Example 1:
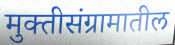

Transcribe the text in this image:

मुक्तीसंग्रामातील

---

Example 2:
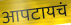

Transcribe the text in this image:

आपटायचं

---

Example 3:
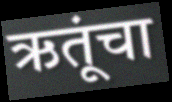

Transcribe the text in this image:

ऋतूंचा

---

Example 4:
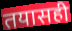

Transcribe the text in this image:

तयासही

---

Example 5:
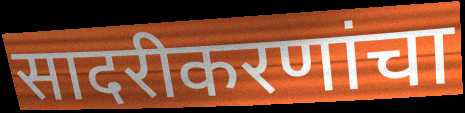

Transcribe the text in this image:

सादरीकरणांचा